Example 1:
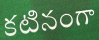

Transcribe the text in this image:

కటినంగా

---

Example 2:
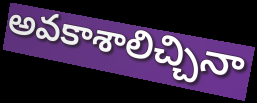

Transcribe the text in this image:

అవకాశాలిచ్చినా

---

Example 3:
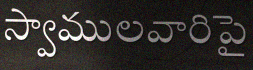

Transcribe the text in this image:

స్వాములవారిపై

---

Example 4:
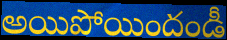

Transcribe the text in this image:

అయిపోయిందండీ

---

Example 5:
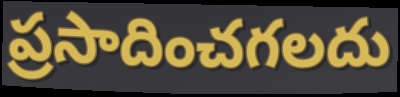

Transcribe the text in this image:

ప్రసాదించగలదు